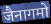
जैनागमो